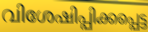
വിശേഷിപ്പിക്കപ്പെട്ട